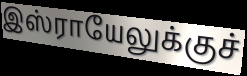
இஸ்ராயேலுக்குச்